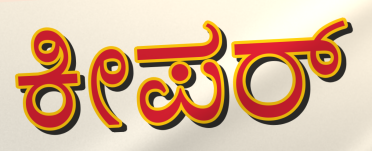
ಕೀಪರ್